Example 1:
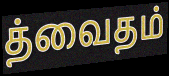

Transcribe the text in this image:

த்வைதம்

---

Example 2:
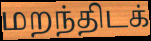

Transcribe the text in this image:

மறந்திடக்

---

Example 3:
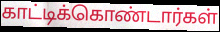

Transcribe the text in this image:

காட்டிக்கொண்டார்கள்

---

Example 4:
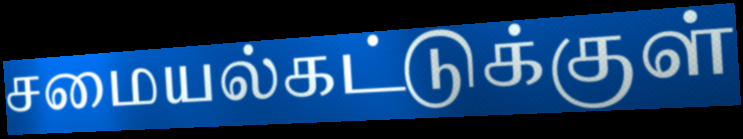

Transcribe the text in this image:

சமையல்கட்டுக்குள்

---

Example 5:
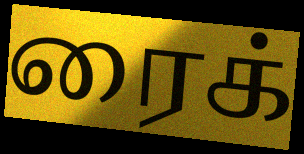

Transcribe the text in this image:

ரைக்